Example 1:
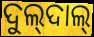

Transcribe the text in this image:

ଦୁଲ୍‍ଦାଲ୍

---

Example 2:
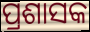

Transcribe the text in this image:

ପ୍ରଶାସକ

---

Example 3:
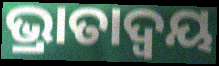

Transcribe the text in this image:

ଭ୍ରାତାଦ୍ୱୟ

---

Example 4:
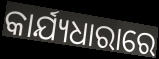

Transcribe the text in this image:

କାର୍ଯ୍ୟଧାରାରେ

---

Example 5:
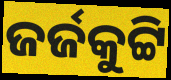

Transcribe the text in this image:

ଜର୍ଜକୁଟ୍ଟି